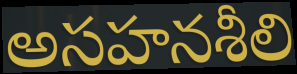
అసహనశీలి